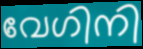
വേഗിനി